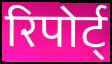
रिपोर्ट्